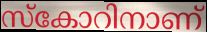
സ്കോറിനാണ്